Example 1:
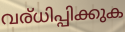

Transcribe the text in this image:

വര്ധിപ്പിക്കുക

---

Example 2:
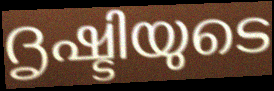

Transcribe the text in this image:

ദൃഷ്ടിയുടെ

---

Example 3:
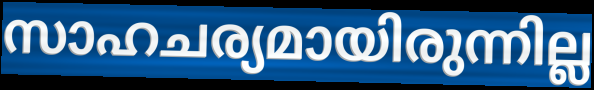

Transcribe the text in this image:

സാഹചര്യമായിരുന്നില്ല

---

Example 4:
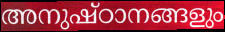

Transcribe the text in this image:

അനുഷ്ഠാനങ്ങളും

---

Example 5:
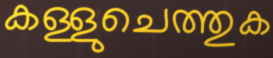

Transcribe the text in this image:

കള്ളുചെത്തുക